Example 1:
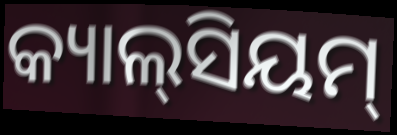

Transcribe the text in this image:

କ୍ୟାଲ୍‌ସିୟମ୍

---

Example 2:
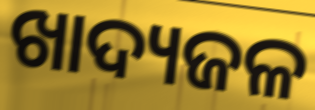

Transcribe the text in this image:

ଖାଦ୍ୟଜଳ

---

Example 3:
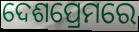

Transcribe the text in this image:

ଦେଶପ୍ରେମରେ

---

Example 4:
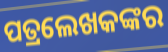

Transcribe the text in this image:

ପତ୍ରଲେଖକଙ୍କର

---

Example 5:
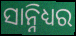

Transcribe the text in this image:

ସାନ୍ନିଧ୍ୟର